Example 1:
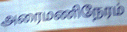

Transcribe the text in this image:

அரைமணிநேரம்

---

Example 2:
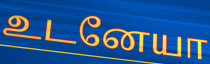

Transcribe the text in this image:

உடனேயா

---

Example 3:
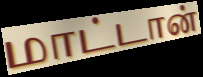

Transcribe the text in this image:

மாட்டான்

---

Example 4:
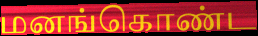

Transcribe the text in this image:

மனங்கொண்ட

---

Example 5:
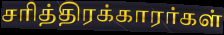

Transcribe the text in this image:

சரித்திரக்காரர்கள்